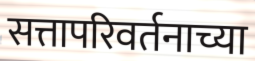
सत्तापरिवर्तनाच्या